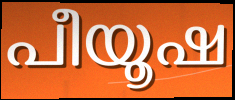
പീയൂഷ